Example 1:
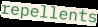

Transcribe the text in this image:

repellents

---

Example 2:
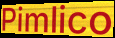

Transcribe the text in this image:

Pimlico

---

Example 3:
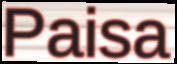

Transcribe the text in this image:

Paisa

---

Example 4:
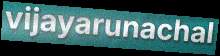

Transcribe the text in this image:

vijayarunachal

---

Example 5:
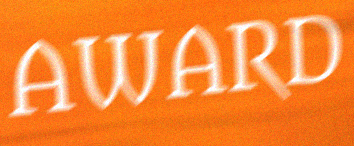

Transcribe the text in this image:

AWARD